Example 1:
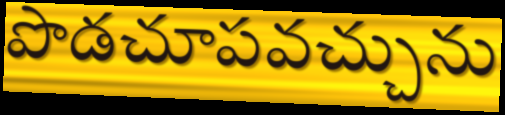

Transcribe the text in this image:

పొడచూపవచ్చును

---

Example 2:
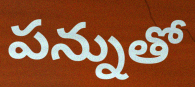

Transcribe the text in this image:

పన్నుతో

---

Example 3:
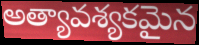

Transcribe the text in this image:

అత్యావశ్యకమైన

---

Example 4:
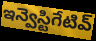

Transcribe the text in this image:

ఇన్వెస్టిగేటివ్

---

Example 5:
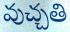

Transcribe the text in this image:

వుచ్చతి